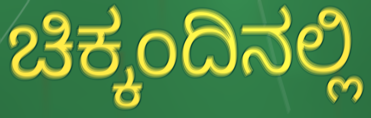
ಚಿಕ್ಕಂದಿನಲ್ಲಿ